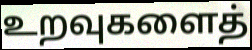
உறவுகளைத்